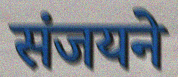
संजयने